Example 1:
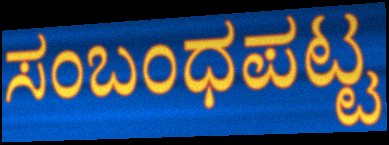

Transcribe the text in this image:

ಸಂಬಂಧಪಟ್ಟ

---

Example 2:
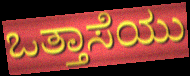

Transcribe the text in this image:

ಒತ್ತಾಸೆಯು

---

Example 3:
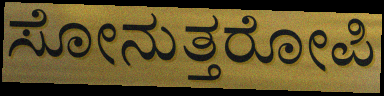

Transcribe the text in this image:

ಸೋನುತ್ತರೋಪಿ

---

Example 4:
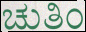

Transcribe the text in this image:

ಚುತಿಂ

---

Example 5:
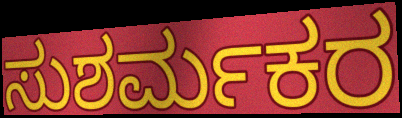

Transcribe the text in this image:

ಸುಶರ್ಮಕರ